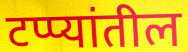
टप्प्यांतील